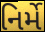
નિર્મે